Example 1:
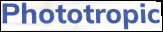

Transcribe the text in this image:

Phototropic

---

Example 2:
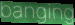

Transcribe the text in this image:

banging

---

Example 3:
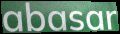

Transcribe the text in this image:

abasar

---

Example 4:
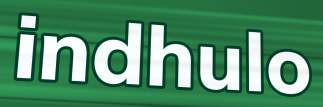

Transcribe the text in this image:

indhulo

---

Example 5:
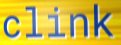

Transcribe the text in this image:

clink